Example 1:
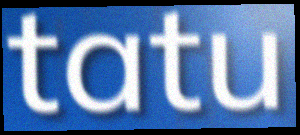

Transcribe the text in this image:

tatu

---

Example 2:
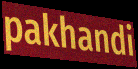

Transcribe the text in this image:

pakhandi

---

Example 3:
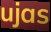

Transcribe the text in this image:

ujas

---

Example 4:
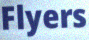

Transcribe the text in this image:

Flyers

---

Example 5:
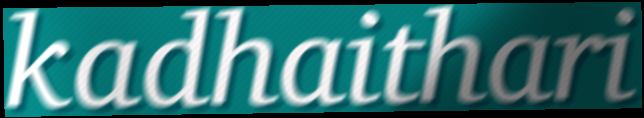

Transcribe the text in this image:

kadhaithari